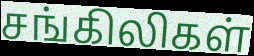
சங்கிலிகள்